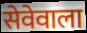
सेवेवाला